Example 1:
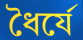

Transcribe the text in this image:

ধৈর্যে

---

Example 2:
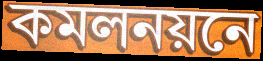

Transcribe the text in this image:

কমলনয়নে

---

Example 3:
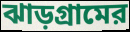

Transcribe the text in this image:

ঝাড়গ্রামের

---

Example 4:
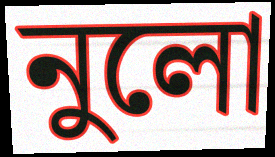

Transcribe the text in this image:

নুলো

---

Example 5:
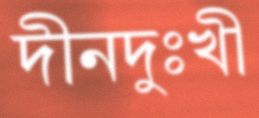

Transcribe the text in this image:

দীনদুঃখী